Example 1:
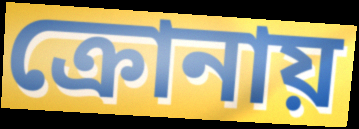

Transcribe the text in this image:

ক্রোনায়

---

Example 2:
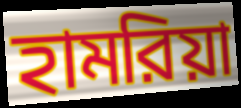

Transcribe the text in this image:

হামরিয়া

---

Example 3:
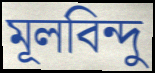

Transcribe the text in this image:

মূলবিন্দু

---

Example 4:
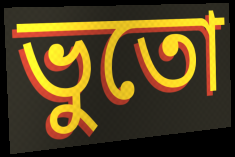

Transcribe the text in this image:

ভুতো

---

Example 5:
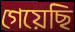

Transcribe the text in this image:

গেয়েছি